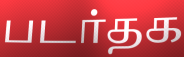
படர்தக